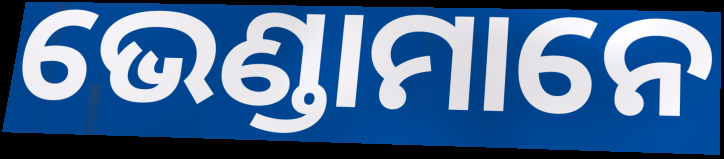
ଭେଣ୍ଡାମାନେ